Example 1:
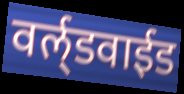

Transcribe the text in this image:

वर्ल्डवाईड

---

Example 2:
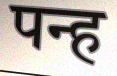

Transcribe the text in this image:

पन्ह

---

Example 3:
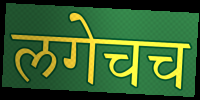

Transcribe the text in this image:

लगेचच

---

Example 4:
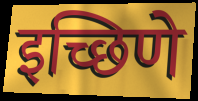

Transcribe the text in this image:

इच्छिणे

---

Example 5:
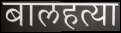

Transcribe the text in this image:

बालहत्या